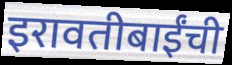
इरावतीबाईंची